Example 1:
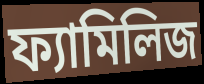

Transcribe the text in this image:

ফ্যামিলিজ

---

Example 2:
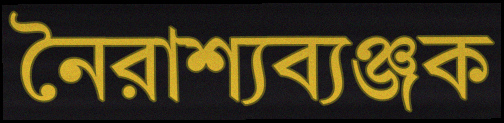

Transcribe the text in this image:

নৈরাশ্যব্যঞ্জক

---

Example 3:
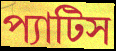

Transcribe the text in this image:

প্যাটিস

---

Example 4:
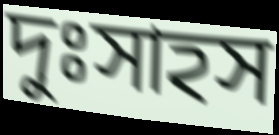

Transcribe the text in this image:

দুঃসাহস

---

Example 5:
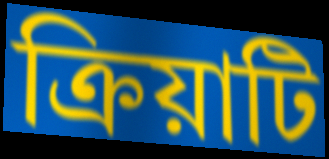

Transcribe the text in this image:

ক্রিয়াটি